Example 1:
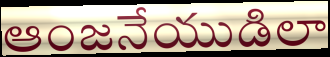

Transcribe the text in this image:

ఆంజనేయుడిలా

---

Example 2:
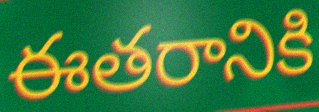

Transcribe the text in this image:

ఈతరానికి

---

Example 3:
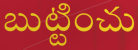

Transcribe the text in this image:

బుట్టించు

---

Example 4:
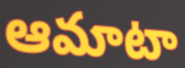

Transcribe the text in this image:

ఆమాటా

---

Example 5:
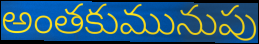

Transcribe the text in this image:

అంతకుమునుపు